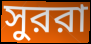
সুররা